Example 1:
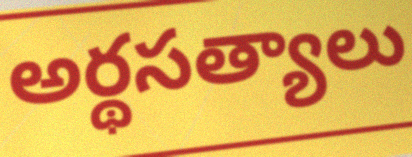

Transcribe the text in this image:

అర్థసత్యాలు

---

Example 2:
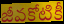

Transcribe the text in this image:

జీవకోటికీ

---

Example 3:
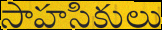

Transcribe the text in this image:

సాహసికులు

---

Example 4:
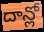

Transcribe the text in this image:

దాన్లో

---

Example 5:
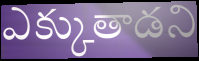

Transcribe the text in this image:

ఎక్కుతాడని